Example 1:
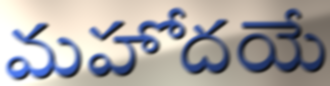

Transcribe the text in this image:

మహోదయే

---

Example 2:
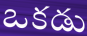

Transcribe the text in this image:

ఒకడు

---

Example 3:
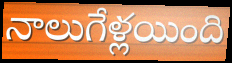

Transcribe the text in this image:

నాలుగేళ్లయింది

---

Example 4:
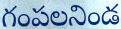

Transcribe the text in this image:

గంపలనిండ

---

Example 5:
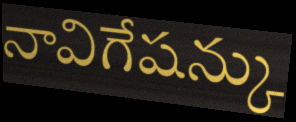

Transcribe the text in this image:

నావిగేషన్కు